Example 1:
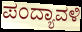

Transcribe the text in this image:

ಪಂದ್ಯಾವಳಿ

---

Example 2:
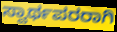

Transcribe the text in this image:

ಸ್ವಾರ್ಥಪರರಾಗಿ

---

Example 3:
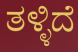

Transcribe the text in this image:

ತಳ್ಳಿದೆ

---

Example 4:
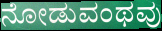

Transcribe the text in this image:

ನೋಡುವಂಥವು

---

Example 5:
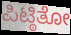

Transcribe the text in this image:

ಪಿಟ್ಠಿತೋ